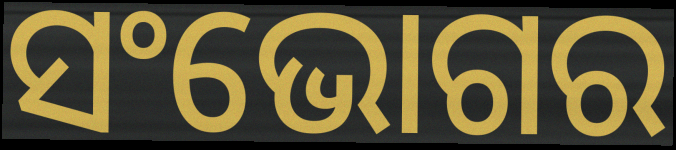
ସଂଭୋଗର